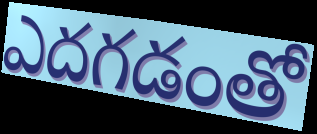
ఎదగడంతో